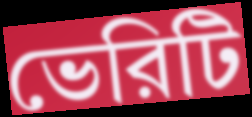
ভেরিটি